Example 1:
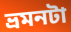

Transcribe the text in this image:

ভ্রমনটা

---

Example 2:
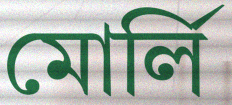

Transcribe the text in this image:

মোর্লি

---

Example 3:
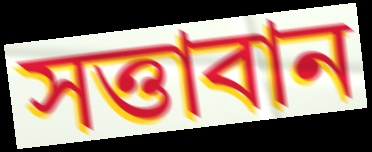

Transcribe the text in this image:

সত্তাবান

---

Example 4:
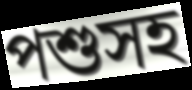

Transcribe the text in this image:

পশুসহ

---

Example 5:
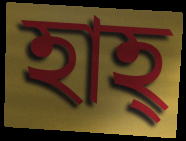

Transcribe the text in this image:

হাহ্